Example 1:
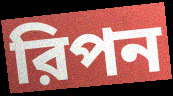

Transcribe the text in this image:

রিপন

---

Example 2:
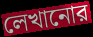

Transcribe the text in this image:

লেখানোর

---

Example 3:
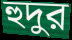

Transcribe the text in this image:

হুদুর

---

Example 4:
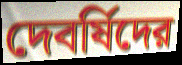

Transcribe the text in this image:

দেবর্ষিদের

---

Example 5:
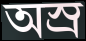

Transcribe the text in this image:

অস্র